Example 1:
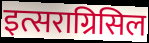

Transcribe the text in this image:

इत्सराग्रिसिल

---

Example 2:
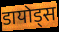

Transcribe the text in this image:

डायोड्स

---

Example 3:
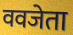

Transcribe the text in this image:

ववजेता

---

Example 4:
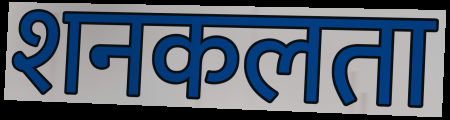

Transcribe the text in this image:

शनकलता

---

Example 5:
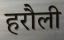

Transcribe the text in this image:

हरौली